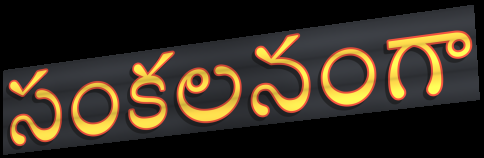
సంకలనంగా